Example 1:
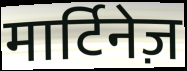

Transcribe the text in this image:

मार्टिनेज़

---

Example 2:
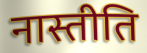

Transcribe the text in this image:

नास्तीति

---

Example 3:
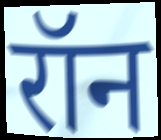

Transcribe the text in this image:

रॉन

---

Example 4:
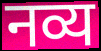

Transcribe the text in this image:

नव्य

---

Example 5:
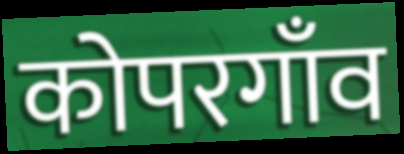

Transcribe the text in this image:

कोपरगाँव